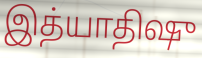
இத்யாதிஷு